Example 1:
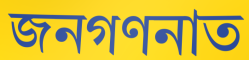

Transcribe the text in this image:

জনগণনাত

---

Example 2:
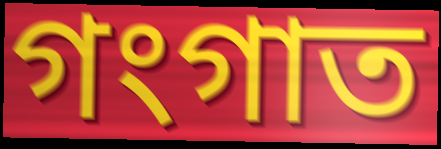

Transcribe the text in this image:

গংগাত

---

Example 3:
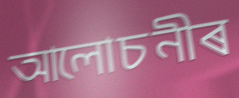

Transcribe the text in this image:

আলোচনীৰ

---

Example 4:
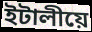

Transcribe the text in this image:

ইটালীয়ে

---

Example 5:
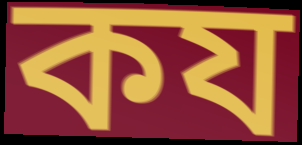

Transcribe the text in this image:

কয